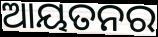
ଆୟତନର